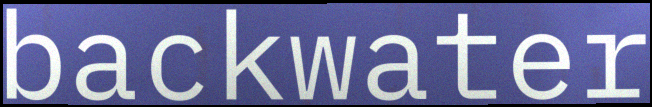
backwater